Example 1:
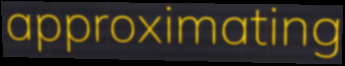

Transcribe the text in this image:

approximating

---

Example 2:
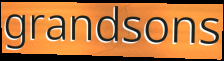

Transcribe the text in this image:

grandsons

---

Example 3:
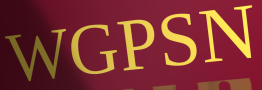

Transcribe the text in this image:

WGPSN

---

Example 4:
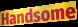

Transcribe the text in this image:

Handsome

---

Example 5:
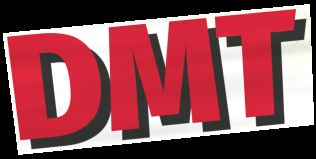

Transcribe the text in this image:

DMT